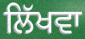
ਲਿੱਖਵਾ